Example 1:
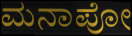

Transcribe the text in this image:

ಮನಾಪೋ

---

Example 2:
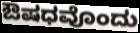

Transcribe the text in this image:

ಔಷಧವೊಂದು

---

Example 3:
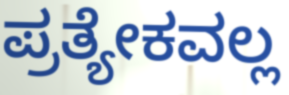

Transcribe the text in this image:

ಪ್ರತ್ಯೇಕವಲ್ಲ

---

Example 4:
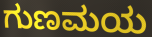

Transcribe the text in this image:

ಗುಣಮಯ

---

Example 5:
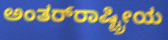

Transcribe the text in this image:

ಅಂತರ್‌ರಾಷ್ಟ್ರೀಯ